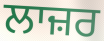
ਲਾਜ਼ਰ